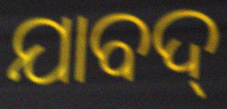
ଯାବଦ୍